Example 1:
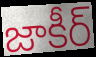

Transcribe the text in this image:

జాకీర్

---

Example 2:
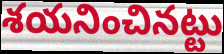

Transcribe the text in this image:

శయనించినట్టు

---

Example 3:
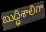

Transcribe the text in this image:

బుద్ధిశాలిగా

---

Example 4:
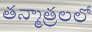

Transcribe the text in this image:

తన్మాత్రలలో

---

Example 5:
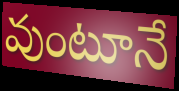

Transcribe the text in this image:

వుంటూనే